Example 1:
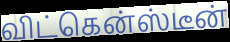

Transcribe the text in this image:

விட்கென்ஸ்டீன்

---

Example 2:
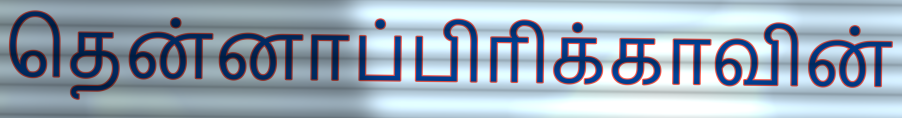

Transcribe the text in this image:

தென்னாப்பிரிக்காவின்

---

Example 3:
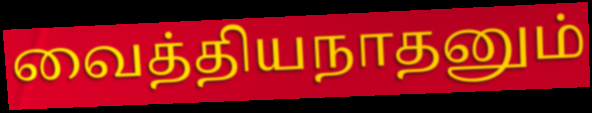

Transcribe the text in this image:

வைத்தியநாதனும்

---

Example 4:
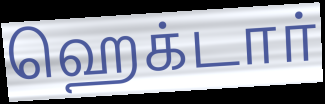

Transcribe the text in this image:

ஹெக்டார்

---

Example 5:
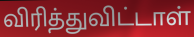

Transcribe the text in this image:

விரித்துவிட்டாள்